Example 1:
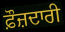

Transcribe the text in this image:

ਫ਼ੌਜ਼ਦਾਰੀ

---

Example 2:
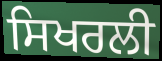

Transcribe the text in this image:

ਸਿਖਰਲੀ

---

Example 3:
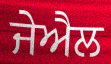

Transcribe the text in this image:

ਜੇਐਲ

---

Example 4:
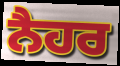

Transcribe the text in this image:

ਨੈਹਰ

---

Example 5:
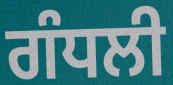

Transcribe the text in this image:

ਗੰਧਲੀ